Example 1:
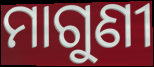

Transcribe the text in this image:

ମାଗୁଣୀ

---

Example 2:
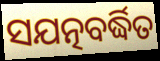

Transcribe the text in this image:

ସଯତ୍ନବର୍ଦ୍ଧିତ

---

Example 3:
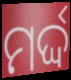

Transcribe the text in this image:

ମର୍ଦ୍ଦ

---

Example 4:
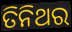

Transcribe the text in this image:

ତିନିଥର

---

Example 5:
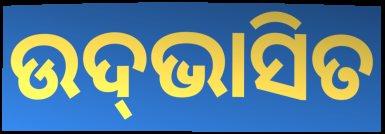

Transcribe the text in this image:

ଉଦ୍‍ଭାସିତ